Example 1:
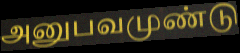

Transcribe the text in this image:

அனுபவமுண்டு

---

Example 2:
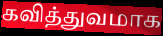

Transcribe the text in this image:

கவித்துவமாக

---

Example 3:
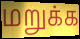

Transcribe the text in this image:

மறுக்க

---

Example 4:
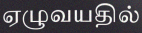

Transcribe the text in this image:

ஏழுவயதில்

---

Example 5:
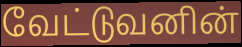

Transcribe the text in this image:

வேட்டுவனின்